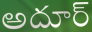
అదూర్